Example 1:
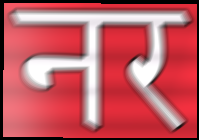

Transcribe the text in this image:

नर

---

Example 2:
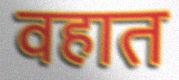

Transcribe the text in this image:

वहात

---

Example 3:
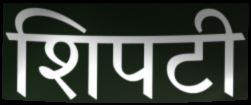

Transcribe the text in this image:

शिपटी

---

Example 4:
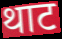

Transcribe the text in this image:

थाट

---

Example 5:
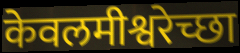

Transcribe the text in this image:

केवलमीश्वरेच्छा